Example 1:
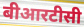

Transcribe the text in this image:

बीआरटीसी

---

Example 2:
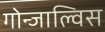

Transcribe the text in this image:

गोन्जाल्विस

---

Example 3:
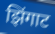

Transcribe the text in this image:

झिंगाट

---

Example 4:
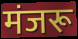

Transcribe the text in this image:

मंजरू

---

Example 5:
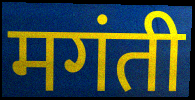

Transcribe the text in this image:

मगंती